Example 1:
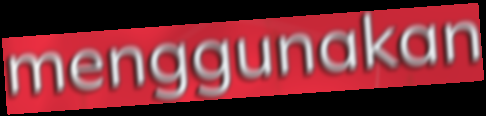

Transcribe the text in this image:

menggunakan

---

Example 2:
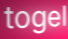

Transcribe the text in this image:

togel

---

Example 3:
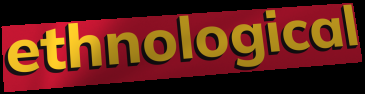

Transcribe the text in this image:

ethnological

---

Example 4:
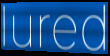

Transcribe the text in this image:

lured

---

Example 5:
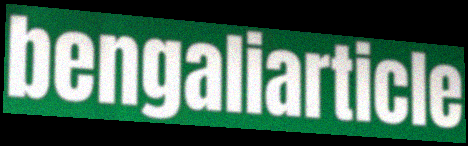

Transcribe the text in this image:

bengaliarticle